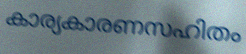
കാര്യകാരണസഹിതം